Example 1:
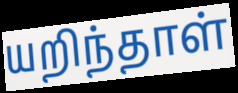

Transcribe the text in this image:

யறிந்தாள்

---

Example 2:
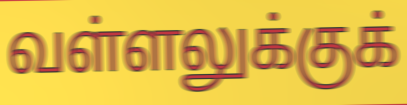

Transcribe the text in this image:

வள்ளலுக்குக்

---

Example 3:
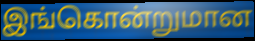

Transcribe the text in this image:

இங்கொன்றுமான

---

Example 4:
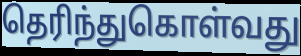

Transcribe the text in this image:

தெரிந்துகொள்வது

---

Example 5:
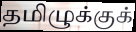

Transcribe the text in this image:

தமிழுக்குக்